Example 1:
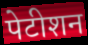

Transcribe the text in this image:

पेटीशन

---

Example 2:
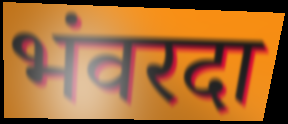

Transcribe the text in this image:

भंवरदा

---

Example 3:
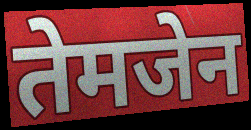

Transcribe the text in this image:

तेमजेन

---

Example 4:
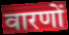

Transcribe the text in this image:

वारणों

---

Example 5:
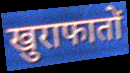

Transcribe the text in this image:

खुराफातों